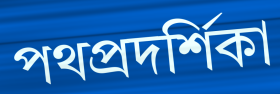
পথপ্রদর্শিকা